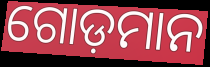
ଗୋଡ଼ମାନ